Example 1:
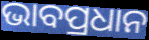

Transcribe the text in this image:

ଭାବପ୍ରଧାନ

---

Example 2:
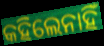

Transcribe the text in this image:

କହିଲେନାହିଁ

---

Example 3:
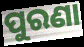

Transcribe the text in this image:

ପୁରଣା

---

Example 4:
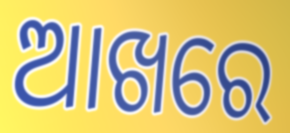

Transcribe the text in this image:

ଆଖରେ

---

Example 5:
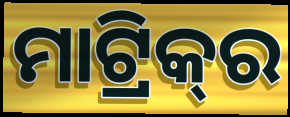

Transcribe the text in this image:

ମାଟ୍ରିକ୍‌ର